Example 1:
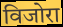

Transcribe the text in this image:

विजोरा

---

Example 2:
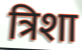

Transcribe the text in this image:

त्रिशा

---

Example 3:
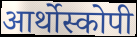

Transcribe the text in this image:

आर्थोस्कोपी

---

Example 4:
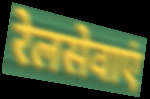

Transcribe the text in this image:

रेलसेवाएं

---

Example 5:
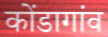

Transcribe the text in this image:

कोंडागांव